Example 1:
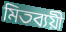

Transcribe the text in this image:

মিতব্যয়ী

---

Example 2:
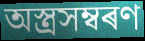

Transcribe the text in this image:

অস্ত্ৰসম্বৰণ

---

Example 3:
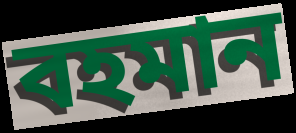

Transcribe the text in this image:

বহমান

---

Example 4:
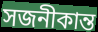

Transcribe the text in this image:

সজনীকান্ত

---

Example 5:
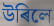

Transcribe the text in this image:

উৰিলে